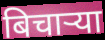
बिचाऱ्या